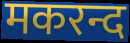
मकरन्द